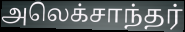
அலெக்சாந்தர்